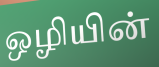
ஒழியின்